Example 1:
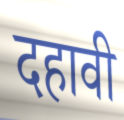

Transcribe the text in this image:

दहावी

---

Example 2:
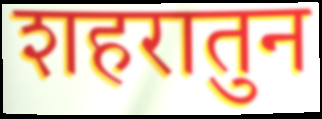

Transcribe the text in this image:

शहरातुन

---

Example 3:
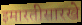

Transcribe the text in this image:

इमारतीसारखे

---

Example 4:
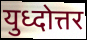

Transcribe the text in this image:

युध्दोत्तर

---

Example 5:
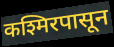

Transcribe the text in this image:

कश्मिरपासून